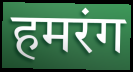
हमरंग